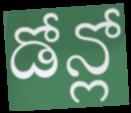
డోన్లో